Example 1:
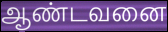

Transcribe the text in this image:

ஆண்டவனை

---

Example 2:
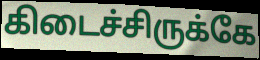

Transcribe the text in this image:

கிடைச்சிருக்கே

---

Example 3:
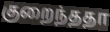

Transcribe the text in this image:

குறைந்ததா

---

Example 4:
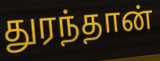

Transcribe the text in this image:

துரந்தான்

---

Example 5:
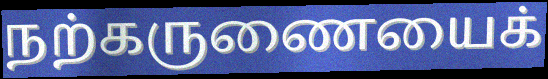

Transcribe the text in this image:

நற்கருணையைக்